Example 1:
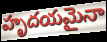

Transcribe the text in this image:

హృదయమైనా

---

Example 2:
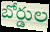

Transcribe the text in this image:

బోర్డుల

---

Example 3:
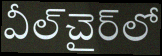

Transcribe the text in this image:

వీల్‌చైర్‌లో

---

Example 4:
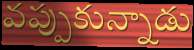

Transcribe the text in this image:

వప్పుకున్నాడు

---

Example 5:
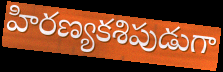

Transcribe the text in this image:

హిరణ్యకశిపుడుగా